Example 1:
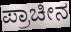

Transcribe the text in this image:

ಪ್ರಾಚೀನ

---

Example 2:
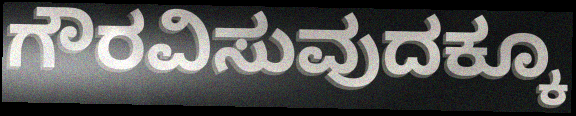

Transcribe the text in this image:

ಗೌರವಿಸುವುದಕ್ಕೂ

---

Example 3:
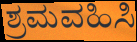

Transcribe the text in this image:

ಶ್ರಮವಹಿಸಿ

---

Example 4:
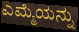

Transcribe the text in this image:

ಎಮ್ಮೆಯನ್ನು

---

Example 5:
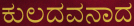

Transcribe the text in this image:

ಕುಲದವನಾದ